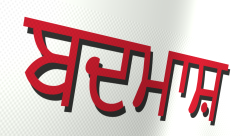
ਬਦਮਾਸ਼